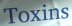
Toxins